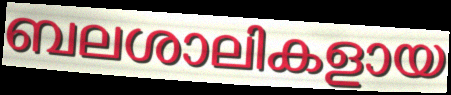
ബലശാലികളായ